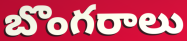
బొంగరాలు